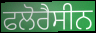
ਫਲੋਰੈਸੀਨ